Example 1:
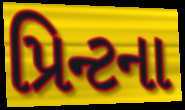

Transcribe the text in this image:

પ્રિન્ટના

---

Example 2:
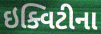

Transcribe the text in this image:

ઇક્વિટીના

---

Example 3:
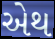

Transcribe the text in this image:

એથ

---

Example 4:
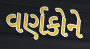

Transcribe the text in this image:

વર્ણકોને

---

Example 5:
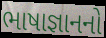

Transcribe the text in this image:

ભાષાજ્ઞાનનો